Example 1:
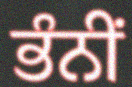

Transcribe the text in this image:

ਭੰਨੀਂ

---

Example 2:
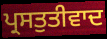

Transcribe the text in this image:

ਪ੍ਰਸਤੁਤੀਵਾਦ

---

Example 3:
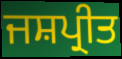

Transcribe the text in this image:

ਜਸ਼ਪ੍ਰੀਤ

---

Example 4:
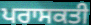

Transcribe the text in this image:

ਪਰਾਸਕਤੀ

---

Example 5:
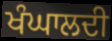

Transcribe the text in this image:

ਖੰਘਾਲਦੀ